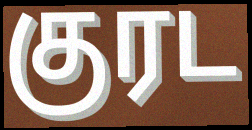
குரட